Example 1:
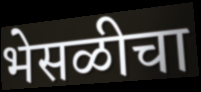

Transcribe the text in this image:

भेसळीचा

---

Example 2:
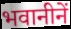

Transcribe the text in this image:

भवानीनें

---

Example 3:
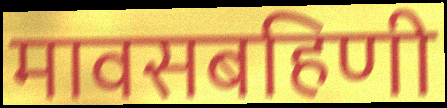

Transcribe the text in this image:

मावसबहिणी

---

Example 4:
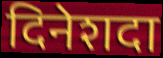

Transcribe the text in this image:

दिनेशदा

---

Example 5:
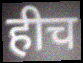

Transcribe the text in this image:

हीच